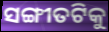
ସଙ୍ଗୀତଟିକୁ